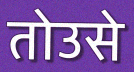
तोउसे